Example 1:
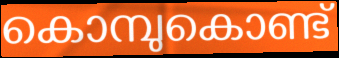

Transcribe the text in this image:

കൊമ്പുകൊണ്ട്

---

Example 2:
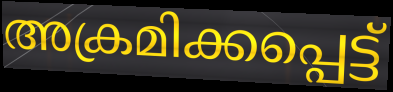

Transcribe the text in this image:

അക്രമിക്കപ്പെട്ട്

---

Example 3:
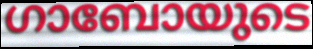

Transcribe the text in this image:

ഗാബോയുടെ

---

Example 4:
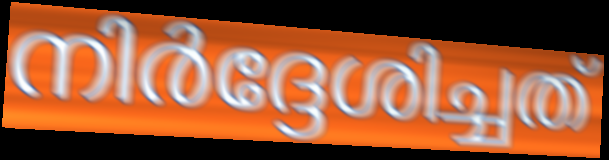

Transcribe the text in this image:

നിർദ്ദേശിച്ചത്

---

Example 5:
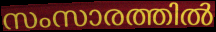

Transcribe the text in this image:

സംസാരത്തിൽ